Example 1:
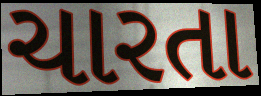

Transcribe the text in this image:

ચારતા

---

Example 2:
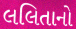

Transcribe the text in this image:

લલિતાનો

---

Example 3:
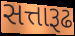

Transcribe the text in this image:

સત્તારૂઢ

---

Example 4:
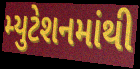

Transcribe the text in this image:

મ્યુટેશનમાંથી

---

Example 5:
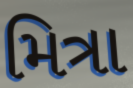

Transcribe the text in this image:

મિત્રા